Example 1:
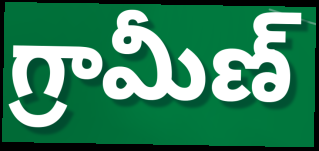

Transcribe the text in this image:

గ్రామీణ్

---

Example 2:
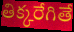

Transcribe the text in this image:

తిక్కరేగితే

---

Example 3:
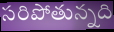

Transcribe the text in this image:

సరిపోతున్నది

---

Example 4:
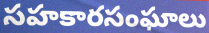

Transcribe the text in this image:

సహకారసంఘాలు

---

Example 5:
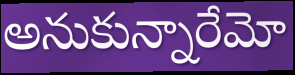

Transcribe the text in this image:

అనుకున్నారేమో